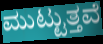
ಮುಟ್ಟುತ್ತವೆ